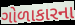
ગોળાકારના